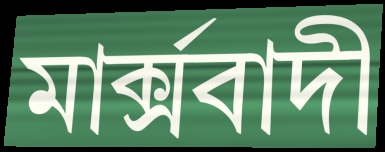
মাৰ্ক্সবাদী